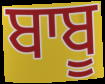
ਬਾਬੂ